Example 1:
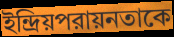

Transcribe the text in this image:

ইন্দ্রিয়পরায়নতাকে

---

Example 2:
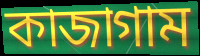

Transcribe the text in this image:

কাজাগাম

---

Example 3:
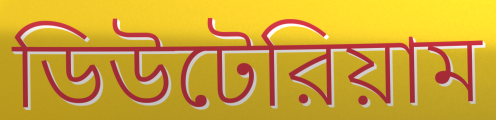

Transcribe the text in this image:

ডিউটেরিয়াম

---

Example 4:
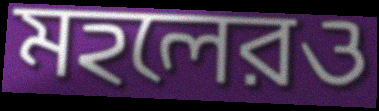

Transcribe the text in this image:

মহলেরও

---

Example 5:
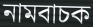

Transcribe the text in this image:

নামবাচক